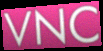
VNC